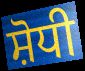
ਸ਼ੋਧੀ